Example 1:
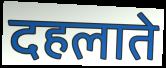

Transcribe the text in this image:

दहलाते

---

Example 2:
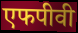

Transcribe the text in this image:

एफपीवी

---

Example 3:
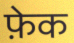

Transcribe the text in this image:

फ़ेक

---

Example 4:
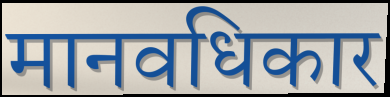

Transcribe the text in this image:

मानवधिकार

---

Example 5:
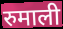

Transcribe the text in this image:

रुमाली